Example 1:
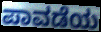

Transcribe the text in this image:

ಪಾವಡೆಯ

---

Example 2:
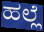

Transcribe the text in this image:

ಹಲ್ಲೆ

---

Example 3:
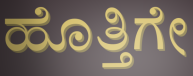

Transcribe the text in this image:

ಹೊತ್ತಿಗೇ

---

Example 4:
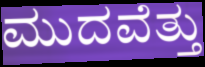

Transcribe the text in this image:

ಮುದವೆತ್ತು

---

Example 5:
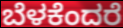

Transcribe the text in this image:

ಬೆಳಕೆಂದರೆ